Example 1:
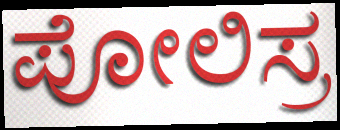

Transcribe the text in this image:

ಪೋಲಿಸ್ರ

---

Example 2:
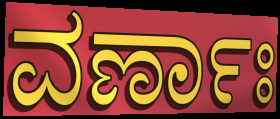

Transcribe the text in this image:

ವರ್ಣಾಃ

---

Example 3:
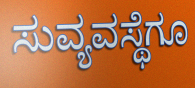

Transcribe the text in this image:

ಸುವ್ಯವಸ್ಥೆಗೂ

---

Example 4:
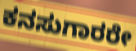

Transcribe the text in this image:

ಕನಸುಗಾರರೇ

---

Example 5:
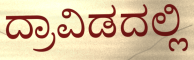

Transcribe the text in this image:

ದ್ರಾವಿಡದಲ್ಲಿ